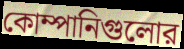
কোম্পানিগুলোর